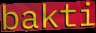
bakti